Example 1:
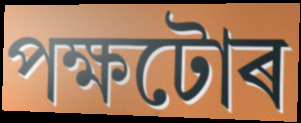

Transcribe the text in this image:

পক্ষটোৰ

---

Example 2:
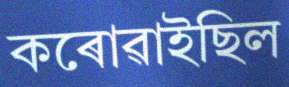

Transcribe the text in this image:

কৰোৱাইছিল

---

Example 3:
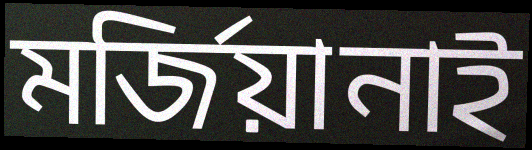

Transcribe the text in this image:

মৰ্জিয়ানাই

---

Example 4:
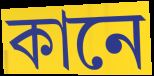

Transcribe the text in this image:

কানে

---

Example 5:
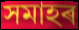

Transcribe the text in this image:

সমাহৰ